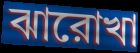
ঝারোখা